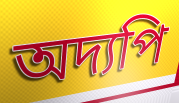
অদ্যপি